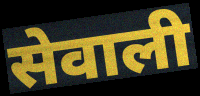
सेवाली